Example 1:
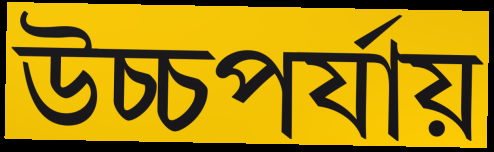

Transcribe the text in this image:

উচ্চপর্যায়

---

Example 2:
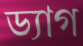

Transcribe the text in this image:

ড্যাগ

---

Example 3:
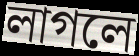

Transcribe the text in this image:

লাগলে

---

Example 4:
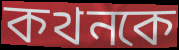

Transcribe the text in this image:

কথনকে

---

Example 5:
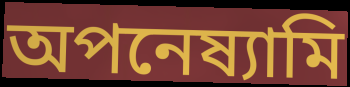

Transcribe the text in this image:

অপনেষ্যামি